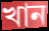
খান